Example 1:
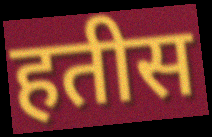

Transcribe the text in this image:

हतीस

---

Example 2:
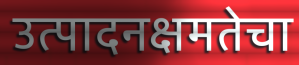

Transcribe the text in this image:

उत्पादनक्षमतेचा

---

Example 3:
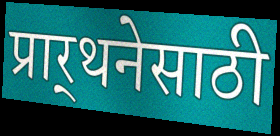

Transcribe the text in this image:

प्रार्थनेसाठी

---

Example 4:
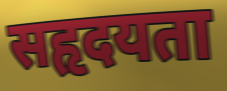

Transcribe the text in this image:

सहृदयता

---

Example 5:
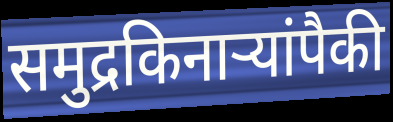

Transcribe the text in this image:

समुद्रकिनाऱ्यांपैकी